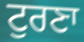
ਟੁਰਣਾ